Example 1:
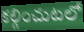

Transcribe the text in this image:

కల్గించుటలో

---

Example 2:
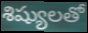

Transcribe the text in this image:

శిష్యులతో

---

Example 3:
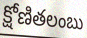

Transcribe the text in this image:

క్షోణితలంబు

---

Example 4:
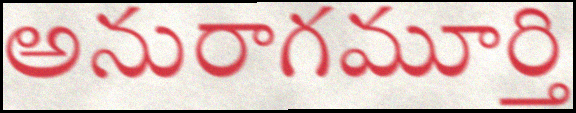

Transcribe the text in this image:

అనురాగమూర్తి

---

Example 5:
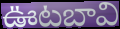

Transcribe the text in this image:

ఊటబావి